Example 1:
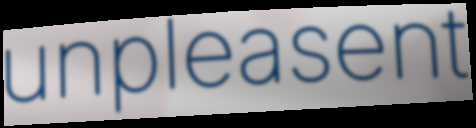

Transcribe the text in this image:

unpleasent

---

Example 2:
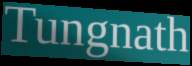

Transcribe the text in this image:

Tungnath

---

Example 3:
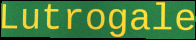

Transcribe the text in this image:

Lutrogale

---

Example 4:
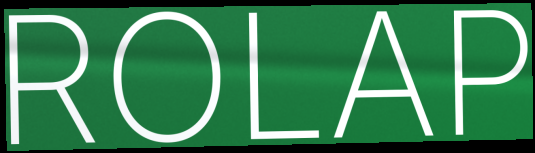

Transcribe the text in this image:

ROLAP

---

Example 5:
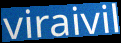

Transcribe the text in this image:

viraivil